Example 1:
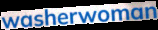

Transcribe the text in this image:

washerwoman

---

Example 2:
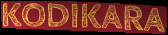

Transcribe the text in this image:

KODIKARA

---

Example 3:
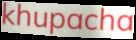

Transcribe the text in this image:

khupacha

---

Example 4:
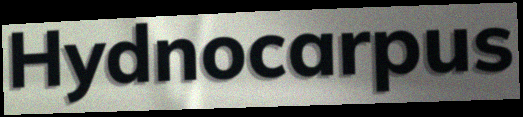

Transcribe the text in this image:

Hydnocarpus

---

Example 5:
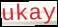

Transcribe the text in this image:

ukay